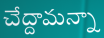
చేద్దామన్నా